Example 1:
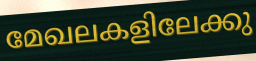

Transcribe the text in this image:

മേഖലകളിലേക്കു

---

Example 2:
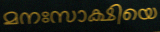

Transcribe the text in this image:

മനഃസാക്ഷിയെ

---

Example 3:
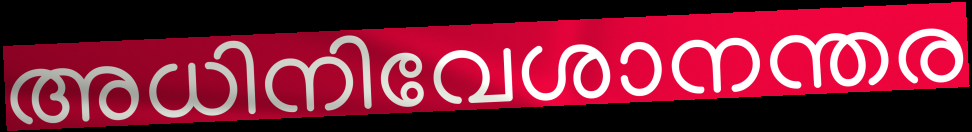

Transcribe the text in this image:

അധിനിവേശാനന്തര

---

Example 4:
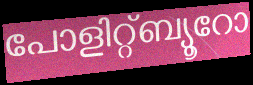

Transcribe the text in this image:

പോളിറ്റ്ബ്യൂറോ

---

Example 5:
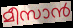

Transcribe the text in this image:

മീസാൻ